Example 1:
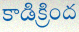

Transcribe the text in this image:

కాడిక్రింద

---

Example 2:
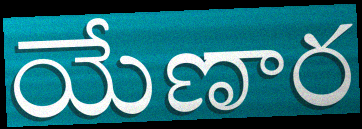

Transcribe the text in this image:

యేణార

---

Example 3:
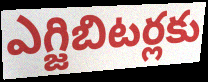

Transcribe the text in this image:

ఎగ్జిబిటర్లకు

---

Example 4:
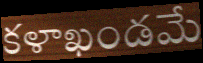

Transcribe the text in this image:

కళాఖండమే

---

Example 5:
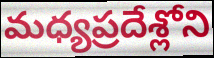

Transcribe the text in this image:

మధ్యప్రదేశ్లోని